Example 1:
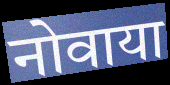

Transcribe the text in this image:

नोवाया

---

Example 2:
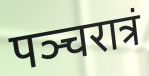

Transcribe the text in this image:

पञ्चरात्रं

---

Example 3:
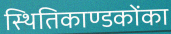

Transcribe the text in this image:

स्थितिकाण्डकोंका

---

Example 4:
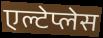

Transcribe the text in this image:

एल्टेप्लेस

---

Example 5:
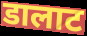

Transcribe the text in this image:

डालाट